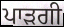
ਪਾੜਗੀ